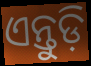
ଏନ୍ତୁଡ଼ି